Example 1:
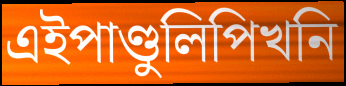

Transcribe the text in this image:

এইপাণ্ডুলিপিখনি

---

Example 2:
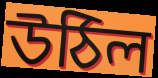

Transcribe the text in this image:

উঠিল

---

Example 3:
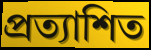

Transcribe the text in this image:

প্ৰত্যাশিত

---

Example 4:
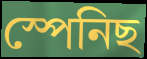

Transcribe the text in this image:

স্পেনিছ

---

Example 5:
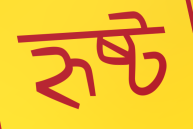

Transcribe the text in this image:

হৃষ্ট